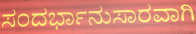
ಸಂದರ್ಭಾನುಸಾರವಾಗಿ